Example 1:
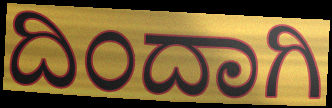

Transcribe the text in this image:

ದಿಂದಾಗಿ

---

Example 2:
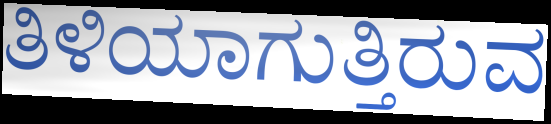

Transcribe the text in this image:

ತಿಳಿಯಾಗುತ್ತಿರುವ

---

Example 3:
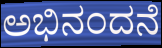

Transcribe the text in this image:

ಅಭಿನಂದನೆ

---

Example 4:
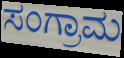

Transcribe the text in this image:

ಸಂಗ್ರಾಮ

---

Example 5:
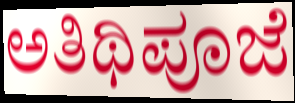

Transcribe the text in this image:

ಅತಿಥಿಪೂಜೆ